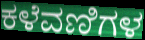
ಕಳೆವಣಿಗಳ